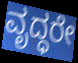
ವೃದ್ಧರೇ